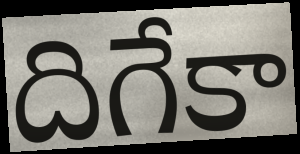
దిగేకా